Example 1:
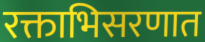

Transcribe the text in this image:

रक्ताभिसरणात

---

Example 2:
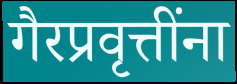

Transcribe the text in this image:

गैरप्रवृत्तींना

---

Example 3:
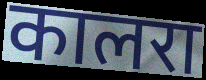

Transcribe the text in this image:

कालरा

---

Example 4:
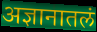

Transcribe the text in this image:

अज्ञानातलं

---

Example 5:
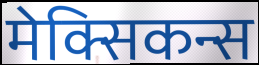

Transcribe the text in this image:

मेक्सिकन्स